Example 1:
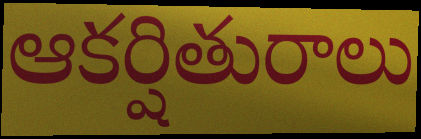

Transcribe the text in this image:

ఆకర్షితురాలు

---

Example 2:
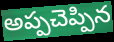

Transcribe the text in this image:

అప్పచెప్పిన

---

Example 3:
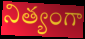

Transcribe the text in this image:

నిత్యంగా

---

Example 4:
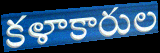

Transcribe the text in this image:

కళాకారుల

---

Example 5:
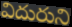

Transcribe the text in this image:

విదురుని